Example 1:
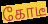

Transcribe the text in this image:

கோடீ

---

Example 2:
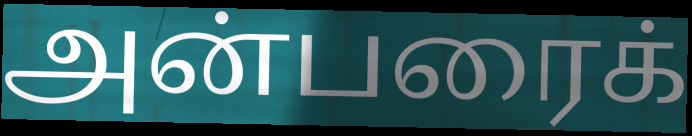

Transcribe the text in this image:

அன்பரைக்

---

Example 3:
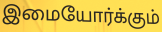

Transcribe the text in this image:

இமையோர்க்கும்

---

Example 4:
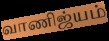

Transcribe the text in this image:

வாணிஜ்யம்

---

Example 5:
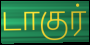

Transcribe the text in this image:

டாகுர்